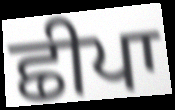
ਛੀਪਾ